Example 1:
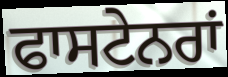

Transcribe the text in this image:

ਫਾਸਟੇਨਰਾਂ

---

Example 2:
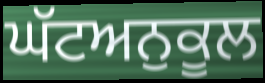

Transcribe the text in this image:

ਘੱਟਅਨੁਕੂਲ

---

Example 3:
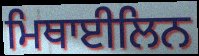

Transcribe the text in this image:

ਮਿਥਾਈਲਿਨ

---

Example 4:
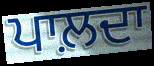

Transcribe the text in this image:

ਪਾਲ਼ਦਾ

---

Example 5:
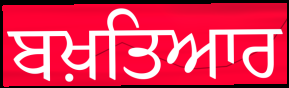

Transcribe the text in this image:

ਬਖ਼ਤਿਆਰ